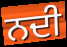
ਨਦੀ